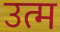
उत्म